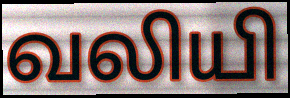
வலியி